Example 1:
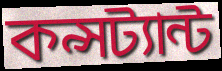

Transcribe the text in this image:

কন্সট্যান্ট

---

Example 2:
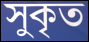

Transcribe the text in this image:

সুকৃত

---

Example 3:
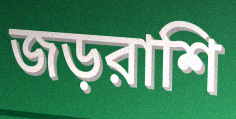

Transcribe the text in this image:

জড়রাশি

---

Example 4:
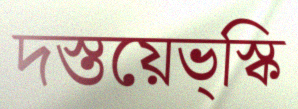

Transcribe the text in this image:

দস্তয়েভ্স্কি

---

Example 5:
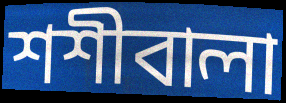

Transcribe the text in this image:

শশীবালা